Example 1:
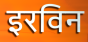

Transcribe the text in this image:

इरविन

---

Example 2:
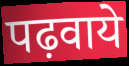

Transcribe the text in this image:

पढ़वाये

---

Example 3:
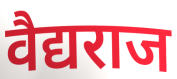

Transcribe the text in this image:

वैद्यराज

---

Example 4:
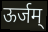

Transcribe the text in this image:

ऊर्जम्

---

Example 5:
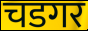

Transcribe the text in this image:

चडगर